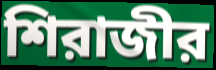
শিরাজীর